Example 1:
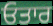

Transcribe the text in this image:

ਓਤਾਰ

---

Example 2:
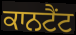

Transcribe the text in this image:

ਕਾਨਟੈਂਟ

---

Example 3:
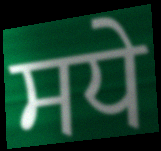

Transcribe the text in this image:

ਸਧੇ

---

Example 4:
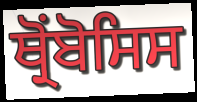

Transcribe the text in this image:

ਥ੍ਰੋਂਬੋਸਿਸ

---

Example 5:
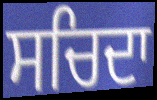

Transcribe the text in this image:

ਸਚਿਦਾ